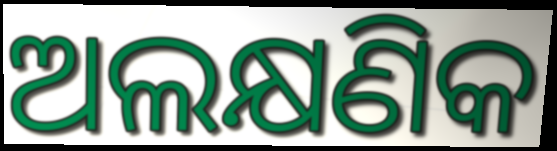
ଅଲକ୍ଷଣିକ